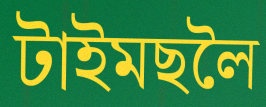
টাইমছলৈ